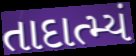
તાદાત્મ્યં